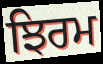
ਝਿਰਮ